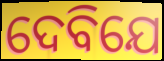
ଦେବିଯେ